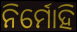
ନିର୍ମୋହି